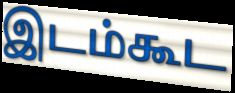
இடம்கூட